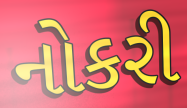
નોકરી